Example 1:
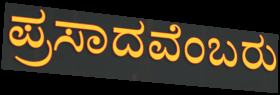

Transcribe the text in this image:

ಪ್ರಸಾದವೆಂಬರು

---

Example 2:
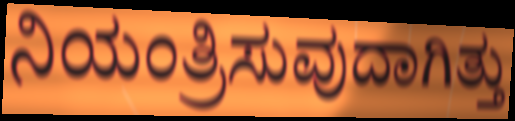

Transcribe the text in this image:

ನಿಯಂತ್ರಿಸುವುದಾಗಿತ್ತು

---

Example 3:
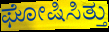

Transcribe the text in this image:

ಘೋಷಿಸಿತ್ತು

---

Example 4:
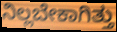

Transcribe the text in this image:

ನಿಲ್ಲಬೇಕಾಗಿತ್ತು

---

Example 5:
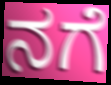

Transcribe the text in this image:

ನಗೆ